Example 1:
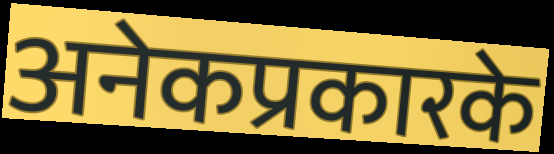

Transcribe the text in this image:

अनेकप्रकारके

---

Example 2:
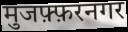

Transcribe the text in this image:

मुजफ़्फ़रनगर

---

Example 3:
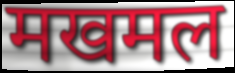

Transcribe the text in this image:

मखमल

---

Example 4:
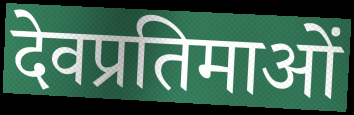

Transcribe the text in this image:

देवप्रतिमाओं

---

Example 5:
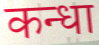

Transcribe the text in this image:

कन्धा